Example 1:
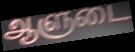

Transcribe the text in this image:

ஆளுடை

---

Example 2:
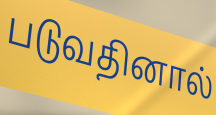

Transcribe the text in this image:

படுவதினால்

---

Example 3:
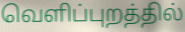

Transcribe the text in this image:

வெளிப்புறத்தில்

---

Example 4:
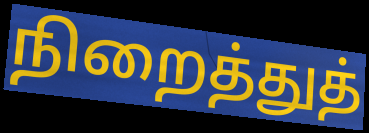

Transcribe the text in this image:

நிறைத்துத்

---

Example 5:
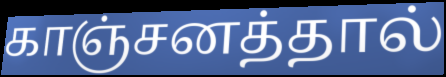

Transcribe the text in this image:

காஞ்சனத்தால்